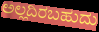
ಅಲ್ಲದಿರಬಹುದು